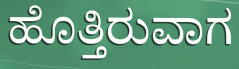
ಹೊತ್ತಿರುವಾಗ